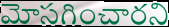
మోసగించారని